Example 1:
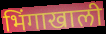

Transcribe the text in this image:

भिंगाखाली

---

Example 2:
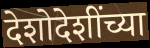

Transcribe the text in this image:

देशोदेशींच्या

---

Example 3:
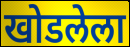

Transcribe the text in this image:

खोडलेला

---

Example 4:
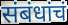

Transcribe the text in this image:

संबंधांचं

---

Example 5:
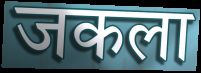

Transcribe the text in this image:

जकला